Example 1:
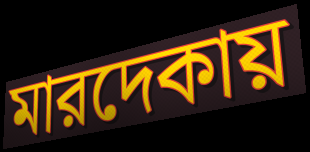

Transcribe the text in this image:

মারদেকায়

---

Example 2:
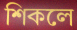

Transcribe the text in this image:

শিকলে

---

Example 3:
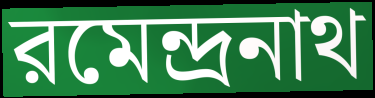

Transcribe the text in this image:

রমেন্দ্রনাথ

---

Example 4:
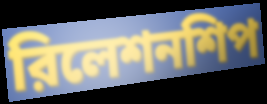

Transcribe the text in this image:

রিলেশনশিপ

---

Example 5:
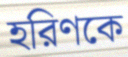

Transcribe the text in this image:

হরিণকে